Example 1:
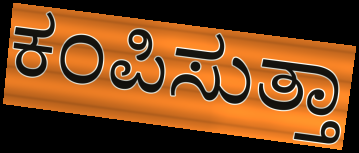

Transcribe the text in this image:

ಕಂಪಿಸುತ್ತಾ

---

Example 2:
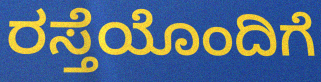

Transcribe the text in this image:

ರಸ್ತೆಯೊಂದಿಗೆ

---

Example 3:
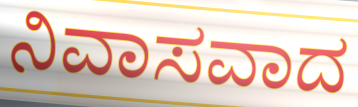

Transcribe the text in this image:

ನಿವಾಸವಾದ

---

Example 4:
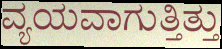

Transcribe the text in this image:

ವ್ಯಯವಾಗುತ್ತಿತ್ತು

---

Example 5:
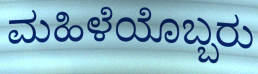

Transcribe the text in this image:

ಮಹಿಳೆಯೊಬ್ಬರು